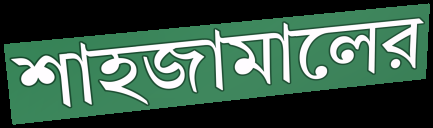
শাহজামালের